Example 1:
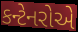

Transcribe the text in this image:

કન્ટેનરોએ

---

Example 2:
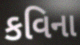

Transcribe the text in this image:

કવિના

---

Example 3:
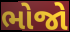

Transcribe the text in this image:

ભોજો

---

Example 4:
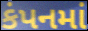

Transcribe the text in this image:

કંપનમાં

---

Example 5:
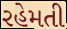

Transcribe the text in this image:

રહેમતી